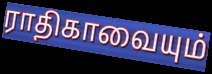
ராதிகாவையும்